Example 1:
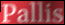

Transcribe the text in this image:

Pallis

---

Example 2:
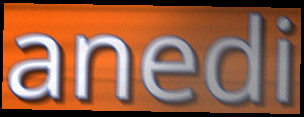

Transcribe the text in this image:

anedi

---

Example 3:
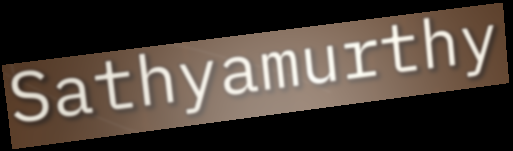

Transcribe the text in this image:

Sathyamurthy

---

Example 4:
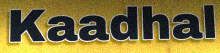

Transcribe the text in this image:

Kaadhal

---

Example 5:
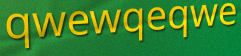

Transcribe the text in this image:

qwewqeqwe